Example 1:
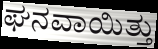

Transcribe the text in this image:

ಘನವಾಯಿತ್ತು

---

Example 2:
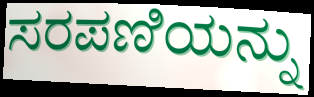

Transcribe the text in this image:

ಸರಪಣಿಯನ್ನು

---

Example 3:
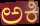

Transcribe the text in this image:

ಅಕಿ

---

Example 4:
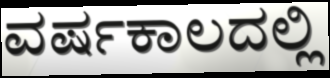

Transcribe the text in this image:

ವರ್ಷಕಾಲದಲ್ಲಿ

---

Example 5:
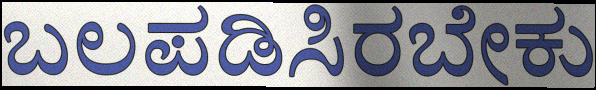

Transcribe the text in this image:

ಬಲಪಡಿಸಿರಬೇಕು